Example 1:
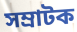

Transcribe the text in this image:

সম্ৰাটক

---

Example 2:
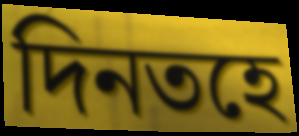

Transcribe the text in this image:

দিনতহে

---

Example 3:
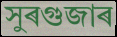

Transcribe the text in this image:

সুৰগুজাৰ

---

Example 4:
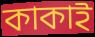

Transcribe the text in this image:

কাকাই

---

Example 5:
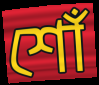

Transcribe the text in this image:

শোঁ